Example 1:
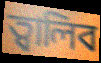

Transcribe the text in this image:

ত্বালিব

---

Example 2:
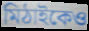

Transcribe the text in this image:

মিঠাইকেও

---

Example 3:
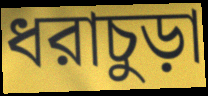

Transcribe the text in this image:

ধরাচুড়া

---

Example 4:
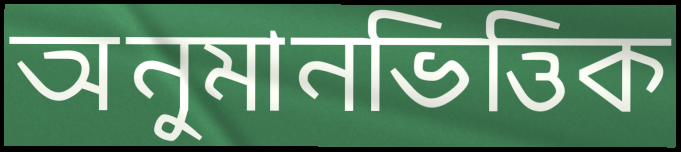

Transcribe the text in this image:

অনুমানভিত্তিক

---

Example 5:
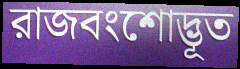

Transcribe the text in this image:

রাজবংশোদ্ভূত